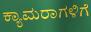
ಕ್ಯಾಮರಾಗಳಿಗೆ